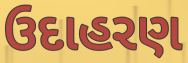
ઉદાહરણ